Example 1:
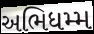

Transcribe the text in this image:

અભિધમ્મ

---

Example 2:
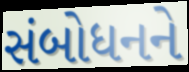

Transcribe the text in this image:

સંબોધનને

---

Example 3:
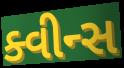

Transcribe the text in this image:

ક્વીન્સ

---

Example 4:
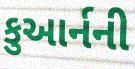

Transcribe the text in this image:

કુઆર્નની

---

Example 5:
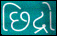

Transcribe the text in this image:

છિદ્રો